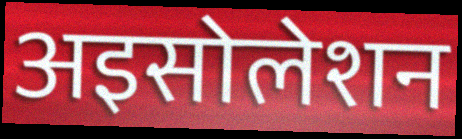
अइसोलेशन